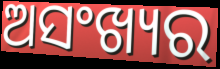
ଅସଂଖ୍ୟର